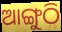
ଆଙ୍ଗୁଠି